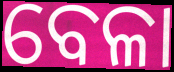
ବେଳା